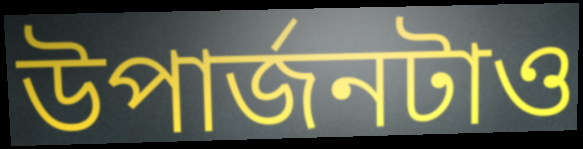
উপার্জনটাও